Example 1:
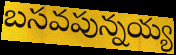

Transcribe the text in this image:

బసవపున్నయ్య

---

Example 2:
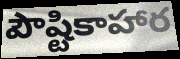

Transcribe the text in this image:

పౌష్టికాహార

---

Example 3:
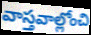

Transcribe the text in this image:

వాస్తవాల్లోంచి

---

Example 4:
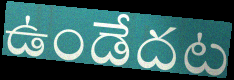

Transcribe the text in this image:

ఉండేదట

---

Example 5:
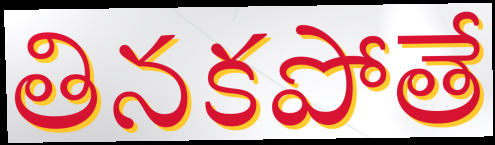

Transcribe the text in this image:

తినకపోతే